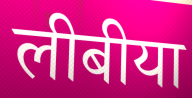
लीबीया